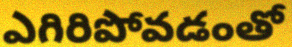
ఎగిరిపోవడంతో